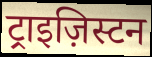
ट्राइज़िस्टन